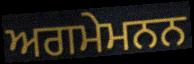
ਅਗਮੇਮਨਨ